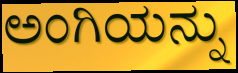
ಅಂಗಿಯನ್ನು